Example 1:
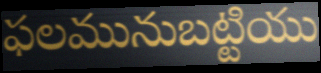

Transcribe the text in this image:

ఫలమునుబట్టియు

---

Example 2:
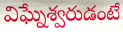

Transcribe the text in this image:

విఘ్నేశ్వరుడంటే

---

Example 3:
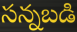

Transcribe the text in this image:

సన్నబడి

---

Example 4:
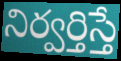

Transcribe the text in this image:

నిర్వర్తిస్తే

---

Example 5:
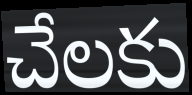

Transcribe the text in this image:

చేలకు